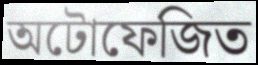
অটোফেজিত